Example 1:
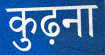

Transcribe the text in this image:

कुढ़ना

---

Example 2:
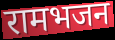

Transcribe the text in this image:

रामभजन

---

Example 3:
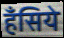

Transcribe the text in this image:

हँसिये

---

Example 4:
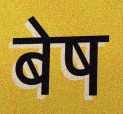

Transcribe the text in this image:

बेष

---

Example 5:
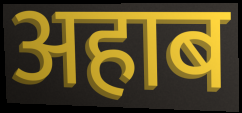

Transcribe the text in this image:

अहाब